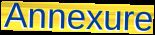
Annexure